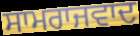
ਸਾਮਰਾਜਵਾਦ